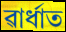
ৱাৰ্ধাত